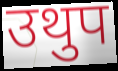
उथुप